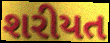
શરીયત